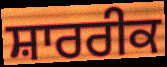
ਸ਼ਾਰਰੀਕ